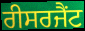
ਰੀਸਰਜੈਂਟ